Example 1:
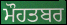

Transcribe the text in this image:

ਮੌਹਤਬਰ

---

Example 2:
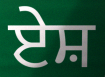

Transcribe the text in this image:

ਏਸ਼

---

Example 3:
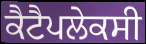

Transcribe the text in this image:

ਕੈਟੈਪਲੇਕਸੀ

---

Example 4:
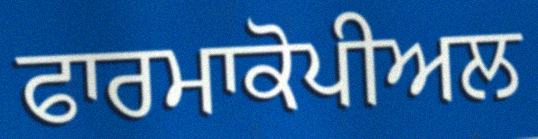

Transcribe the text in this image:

ਫਾਰਮਾਕੋਪੀਅਲ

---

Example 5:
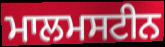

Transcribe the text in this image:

ਮਾਲਮਸਟੀਨ